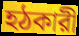
হঠকারী